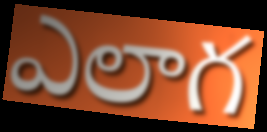
ఎలాగ